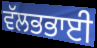
ਵੱਲਭਭਾਈ